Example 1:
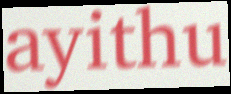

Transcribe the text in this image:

ayithu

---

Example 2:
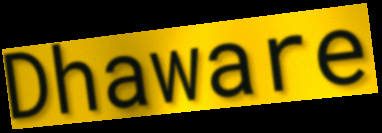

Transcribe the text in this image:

Dhaware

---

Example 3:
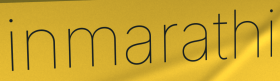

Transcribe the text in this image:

inmarathi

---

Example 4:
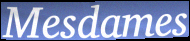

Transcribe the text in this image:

Mesdames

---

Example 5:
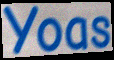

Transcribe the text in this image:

Yoas